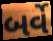
બર્વે